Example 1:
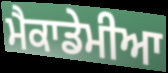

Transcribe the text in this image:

ਮੈਕਾਡੇਮੀਆ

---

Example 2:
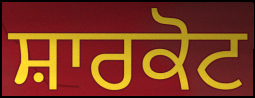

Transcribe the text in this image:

ਸ਼ਾਰਕੋਟ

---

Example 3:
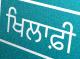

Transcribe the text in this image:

ਖਿਲਾਫ਼ੀ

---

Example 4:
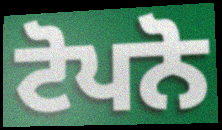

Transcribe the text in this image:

ਟੋਪਨੋ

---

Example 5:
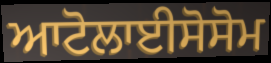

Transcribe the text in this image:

ਆਟੋਲਾਈਸੋਸੋਮ